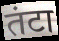
तंटा